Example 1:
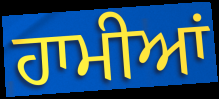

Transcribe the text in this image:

ਹਾਮੀਆਂ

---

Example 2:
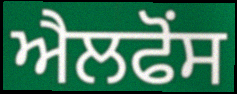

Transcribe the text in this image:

ਐਲਫੋਂਸ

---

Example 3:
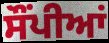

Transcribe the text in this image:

ਸੌਂਪੀਆਂ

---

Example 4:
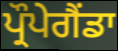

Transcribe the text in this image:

ਪ੍ਰੌਪੇਗੈਂਡਾ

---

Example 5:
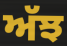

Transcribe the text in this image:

ਅੱਝ